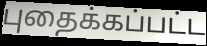
புதைக்கப்பட்ட